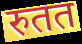
रुतत